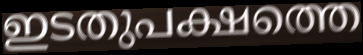
ഇടതുപക്ഷത്തെ